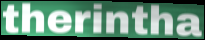
therintha